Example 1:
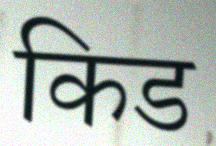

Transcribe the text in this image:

किड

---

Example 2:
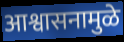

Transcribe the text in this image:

आश्वासनामुळे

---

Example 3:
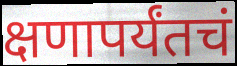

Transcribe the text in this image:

क्षणापर्यंतचं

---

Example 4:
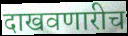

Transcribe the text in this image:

दाखवणारीच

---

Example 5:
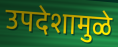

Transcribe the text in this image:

उपदेशामुळे